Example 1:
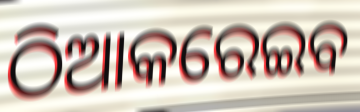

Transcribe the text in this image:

ଠିଆକରେଇବ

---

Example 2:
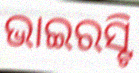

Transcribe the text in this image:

ଭାଇରସ୍ଟି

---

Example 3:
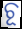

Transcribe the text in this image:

ଚୂ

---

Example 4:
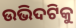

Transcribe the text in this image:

ଉଭିଦଟିକୁ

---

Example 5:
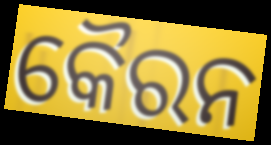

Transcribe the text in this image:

କୈରନ